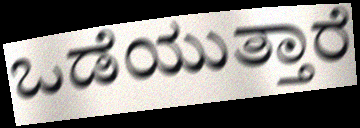
ಒಡೆಯುತ್ತಾರೆ